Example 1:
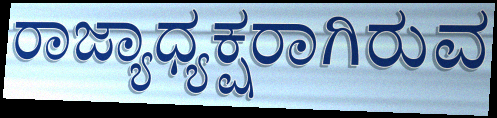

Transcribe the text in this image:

ರಾಜ್ಯಾಧ್ಯಕ್ಷರಾಗಿರುವ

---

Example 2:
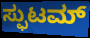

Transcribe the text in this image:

ಸ್ಫುಟಮ್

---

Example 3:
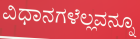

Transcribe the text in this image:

ವಿಧಾನಗಳೆಲ್ಲವನ್ನೂ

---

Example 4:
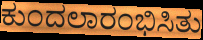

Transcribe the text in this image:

ಕುಂದಲಾರಂಭಿಸಿತು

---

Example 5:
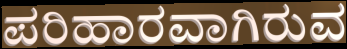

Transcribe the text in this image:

ಪರಿಹಾರವಾಗಿರುವ